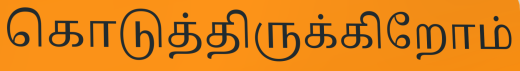
கொடுத்திருக்கிறோம்